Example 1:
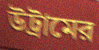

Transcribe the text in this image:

উট্রামের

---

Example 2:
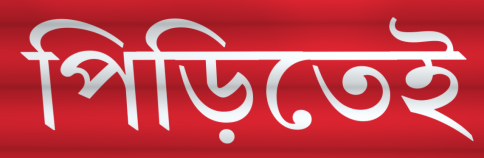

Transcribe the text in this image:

পিড়িতেই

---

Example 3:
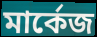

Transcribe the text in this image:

মার্কেজ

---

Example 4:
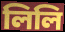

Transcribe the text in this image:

লিলি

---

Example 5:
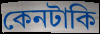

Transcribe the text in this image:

কেনটাকি